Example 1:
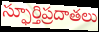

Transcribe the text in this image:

స్ఫూర్తిప్రదాతలు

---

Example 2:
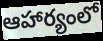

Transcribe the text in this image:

ఆహార్యంలో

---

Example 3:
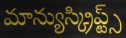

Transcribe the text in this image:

మాన్యుస్క్రిప్ట్స్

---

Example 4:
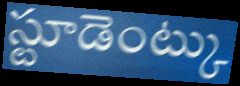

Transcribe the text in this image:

స్టూడెంట్కు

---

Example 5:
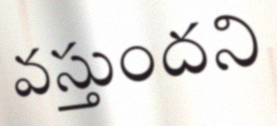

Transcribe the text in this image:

వస్తుందని